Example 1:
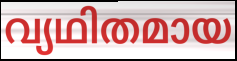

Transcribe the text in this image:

വ്യഥിതമായ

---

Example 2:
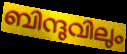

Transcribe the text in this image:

ബിന്ദുവിലും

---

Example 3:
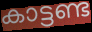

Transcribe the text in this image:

കാട്ടണ്ട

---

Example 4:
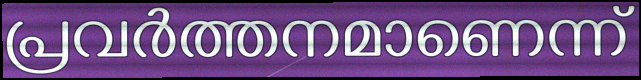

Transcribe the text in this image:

പ്രവർത്തനമാണെന്ന്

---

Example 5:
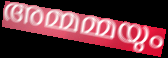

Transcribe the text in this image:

അമ്മമ്മയും